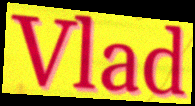
Vlad